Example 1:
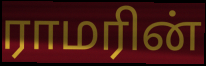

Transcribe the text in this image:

ராமரின்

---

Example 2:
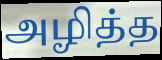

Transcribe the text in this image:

அழித்த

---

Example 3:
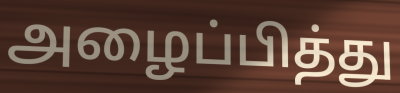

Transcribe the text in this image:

அழைப்பித்து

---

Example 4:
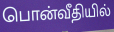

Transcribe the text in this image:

பொன்வீதியில்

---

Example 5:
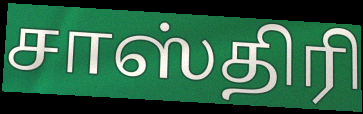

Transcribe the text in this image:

சாஸ்திரி